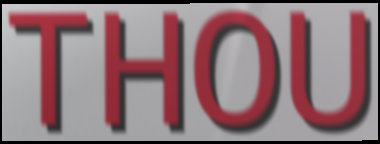
THOU